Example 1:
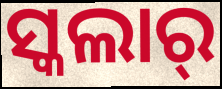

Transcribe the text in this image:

ସ୍କଲାର୍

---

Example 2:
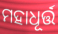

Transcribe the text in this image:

ମହାଧୂର୍ତ୍ତ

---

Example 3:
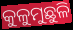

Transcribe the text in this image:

କୁଳୁମୁଛୁଳି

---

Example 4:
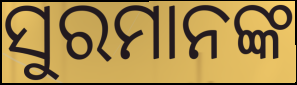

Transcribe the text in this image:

ସୁରମାନଙ୍କ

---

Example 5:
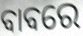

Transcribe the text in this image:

ବାବରେ